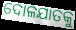
ଦୋଳଯାତକୁ